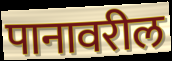
पानावरील